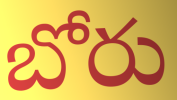
బోరు